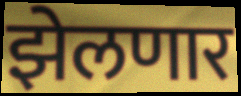
झेलणार